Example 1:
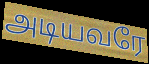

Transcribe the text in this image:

அடியவரே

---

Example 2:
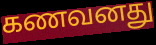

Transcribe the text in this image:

கணவனது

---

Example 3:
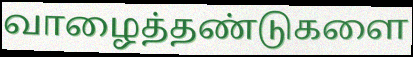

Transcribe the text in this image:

வாழைத்தண்டுகளை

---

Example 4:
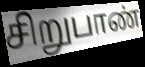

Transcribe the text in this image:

சிறுபாண்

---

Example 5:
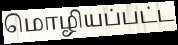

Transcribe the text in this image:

மொழியப்பட்ட